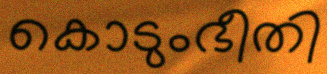
കൊടുംഭീതി